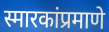
स्मारकांप्रमाणे